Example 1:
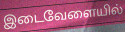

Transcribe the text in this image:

இடைவேளையில்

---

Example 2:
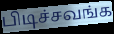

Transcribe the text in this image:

பிடிச்சவங்க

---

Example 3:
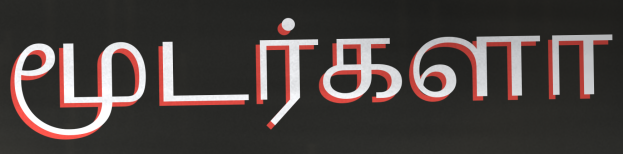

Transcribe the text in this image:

மூடர்களா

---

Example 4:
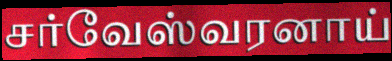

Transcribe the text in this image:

சர்வேஸ்வரனாய்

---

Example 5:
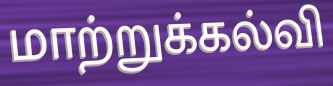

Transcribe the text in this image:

மாற்றுக்கல்வி